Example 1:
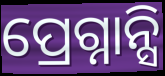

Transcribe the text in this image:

ପ୍ରେଗ୍ନାନ୍ସି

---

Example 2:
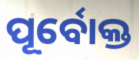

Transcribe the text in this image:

ପୂର୍ବୋକ୍ତ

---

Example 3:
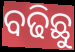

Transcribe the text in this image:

ବଢିଛୁ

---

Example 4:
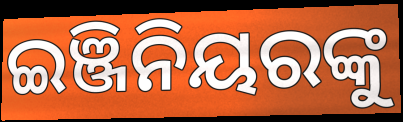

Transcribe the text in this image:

ଇଞ୍ଜିନିୟରଙ୍କୁ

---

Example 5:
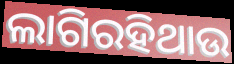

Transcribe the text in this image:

ଲାଗିରହିଥାଉ